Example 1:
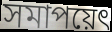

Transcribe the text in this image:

সমাপয়েৎ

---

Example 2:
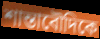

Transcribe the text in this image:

শান্তাবৌদিকে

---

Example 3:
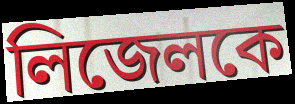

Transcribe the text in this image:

লিজেলকে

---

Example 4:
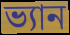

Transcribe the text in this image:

ভ্যান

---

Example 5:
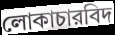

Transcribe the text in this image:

লোকাচারবিদ